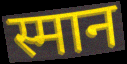
स्मान